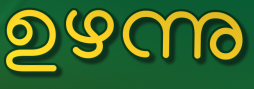
ഉഴന്നു